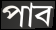
পাব